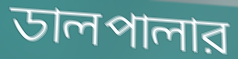
ডালপালার